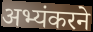
अभ्यंकरने